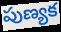
పుణ్యక